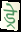
ड्रे